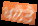
ਖਲੋਤੈ